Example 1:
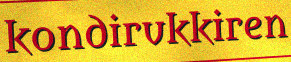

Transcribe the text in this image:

kondirukkiren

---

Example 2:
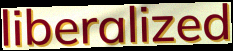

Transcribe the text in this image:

liberalized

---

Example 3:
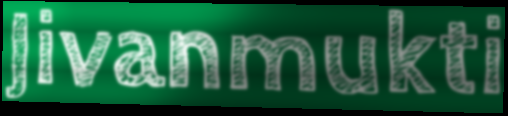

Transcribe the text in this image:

Jivanmukti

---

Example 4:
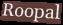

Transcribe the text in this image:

Roopal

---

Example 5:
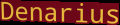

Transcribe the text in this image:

Denarius